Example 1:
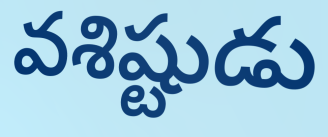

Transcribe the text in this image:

వశిష్టుడు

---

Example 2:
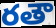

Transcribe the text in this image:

రతౌ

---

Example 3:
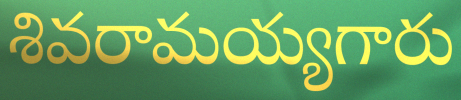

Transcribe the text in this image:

శివరామయ్యగారు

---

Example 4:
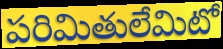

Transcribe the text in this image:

పరిమితులేమిటో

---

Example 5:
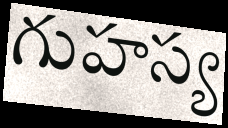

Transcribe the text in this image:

గుహస్య